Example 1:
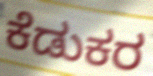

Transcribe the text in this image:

ಕೆಡುಕರ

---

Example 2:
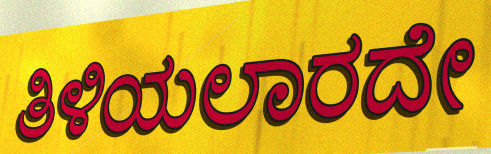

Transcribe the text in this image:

ತಿಳಿಯಲಾರದೇ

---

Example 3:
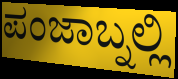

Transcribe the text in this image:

ಪಂಜಾಬ್ನಲ್ಲಿ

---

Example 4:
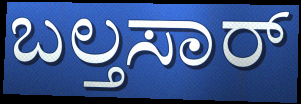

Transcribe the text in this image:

ಬಲ್ತಸಾರ್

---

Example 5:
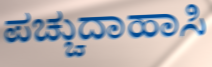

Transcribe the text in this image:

ಪಚ್ಚುದಾಹಾಸಿ